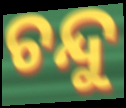
ଚନ୍ଦୁ